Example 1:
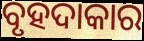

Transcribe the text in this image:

ବୃହଦାକାର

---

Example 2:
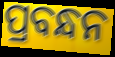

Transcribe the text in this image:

ପ୍ରବନ୍ଧନ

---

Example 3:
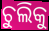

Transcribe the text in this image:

ଚୁଲିକୁ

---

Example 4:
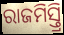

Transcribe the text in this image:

ରାଜମିସ୍ତ୍ରି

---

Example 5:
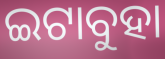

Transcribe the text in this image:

ଇଟାବୁହା